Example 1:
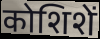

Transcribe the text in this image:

कोशिशें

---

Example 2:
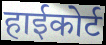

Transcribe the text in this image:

हाईकोर्ट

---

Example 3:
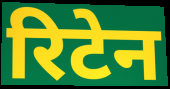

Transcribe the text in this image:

रिटेन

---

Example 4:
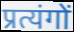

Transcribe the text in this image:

प्रत्यंगों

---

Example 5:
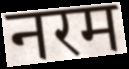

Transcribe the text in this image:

नरम